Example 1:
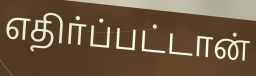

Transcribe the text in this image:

எதிர்ப்பட்டான்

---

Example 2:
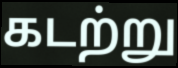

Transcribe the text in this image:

கடற்று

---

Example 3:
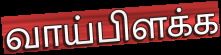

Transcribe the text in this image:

வாய்பிளக்க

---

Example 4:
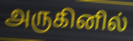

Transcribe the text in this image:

அருகினில்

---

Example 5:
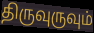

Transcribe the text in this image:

திருவுருவும்